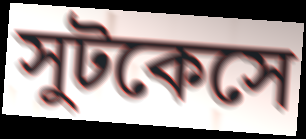
সুটকেসে